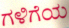
ಗಳಿಗೆಯ